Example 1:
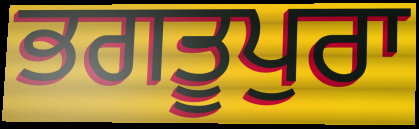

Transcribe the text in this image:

ਭਗਤੂਪੁਰਾ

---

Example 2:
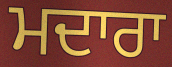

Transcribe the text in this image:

ਮਦਾਰਾ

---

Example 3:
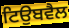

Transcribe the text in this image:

ਟਿਉਬਵੈਲ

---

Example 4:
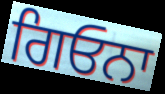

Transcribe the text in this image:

ਗਿਓਨਾ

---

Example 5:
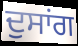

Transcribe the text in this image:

ਦੁਸਾਂਗ